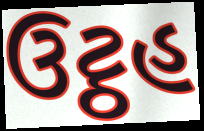
ઉટ્ઠહ